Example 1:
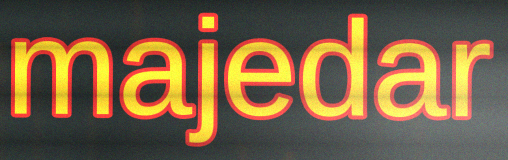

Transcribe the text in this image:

majedar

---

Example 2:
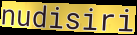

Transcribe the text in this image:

nudisiri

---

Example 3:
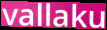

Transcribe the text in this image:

vallaku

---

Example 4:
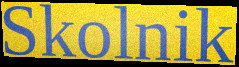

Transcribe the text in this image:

Skolnik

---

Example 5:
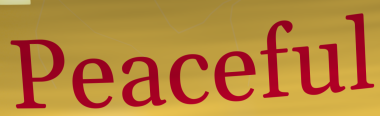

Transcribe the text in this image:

Peaceful